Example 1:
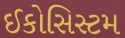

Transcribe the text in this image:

ઈકોસિસ્ટમ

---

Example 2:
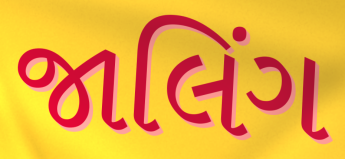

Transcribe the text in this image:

જાલિંગ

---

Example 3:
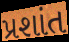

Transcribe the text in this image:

પ્રશાંત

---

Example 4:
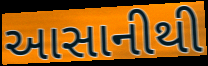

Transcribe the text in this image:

આસાનીથી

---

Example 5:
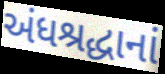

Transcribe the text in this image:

અંધશ્રદ્ધાનાં